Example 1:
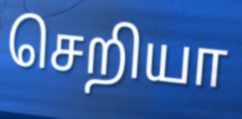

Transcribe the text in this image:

செறியா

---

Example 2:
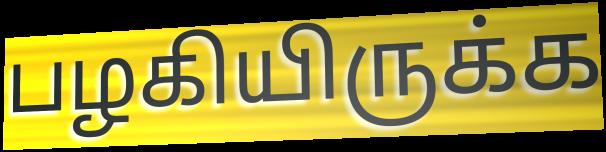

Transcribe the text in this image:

பழகியிருக்க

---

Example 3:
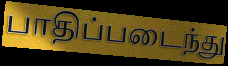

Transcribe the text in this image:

பாதிப்படைந்து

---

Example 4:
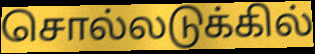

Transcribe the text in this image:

சொல்லடுக்கில்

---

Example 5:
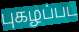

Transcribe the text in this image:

புகழப்பட